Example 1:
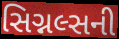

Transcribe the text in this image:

સિગ્નલ્સની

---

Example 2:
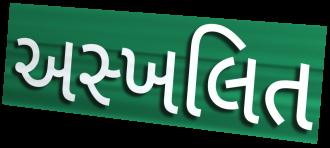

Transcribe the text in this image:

અસ્ખલિત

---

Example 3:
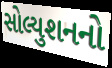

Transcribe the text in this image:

સોલ્યુશનનો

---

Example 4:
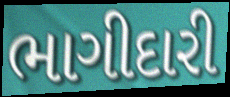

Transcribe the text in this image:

ભાગીદારી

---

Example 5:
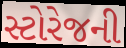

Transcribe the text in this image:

સ્ટોરેજની